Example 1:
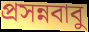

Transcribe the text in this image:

প্রসন্নবাবু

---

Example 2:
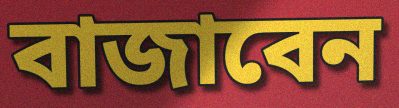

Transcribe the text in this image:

বাজাবেন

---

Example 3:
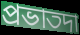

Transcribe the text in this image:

প্রভাতদা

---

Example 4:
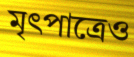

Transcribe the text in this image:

মৃৎপাত্রেও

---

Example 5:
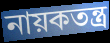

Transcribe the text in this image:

নায়কতন্ত্র